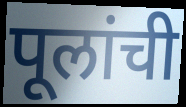
पूलांची